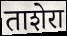
ताशेरा